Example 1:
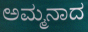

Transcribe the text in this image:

ಅಮ್ಮನಾದ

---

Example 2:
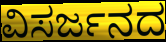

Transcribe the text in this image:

ವಿಸರ್ಜನದ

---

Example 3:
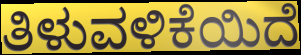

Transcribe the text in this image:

ತಿಳುವಳಿಕೆಯಿದೆ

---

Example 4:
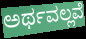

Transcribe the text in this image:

ಅರ್ಥವಲ್ಲವೆ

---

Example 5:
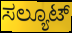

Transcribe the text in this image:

ಸಲ್ಯೂಟ್